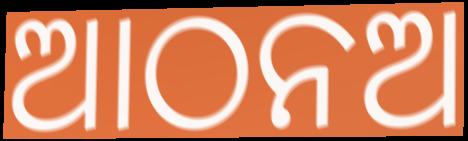
ଆଠନଅ